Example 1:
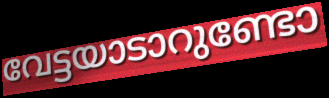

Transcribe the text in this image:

വേട്ടയാടാറുണ്ടോ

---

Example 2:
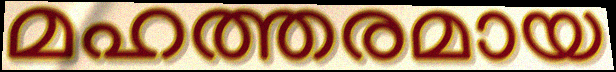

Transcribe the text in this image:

മഹത്തരമായ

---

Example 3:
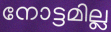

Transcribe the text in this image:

നോട്ടമില്ല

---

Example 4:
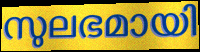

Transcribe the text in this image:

സുലഭമായി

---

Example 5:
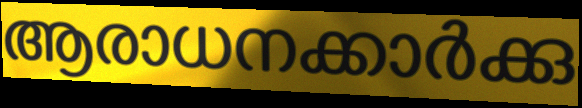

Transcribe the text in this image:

ആരാധനക്കാർക്കു